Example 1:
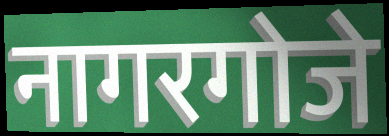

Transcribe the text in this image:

नागरगोजे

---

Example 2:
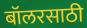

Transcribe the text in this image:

बॉलरसाठी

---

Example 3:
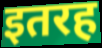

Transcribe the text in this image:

इतरह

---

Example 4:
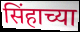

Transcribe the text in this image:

सिंहाच्या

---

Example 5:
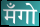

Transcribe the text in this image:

मँगो